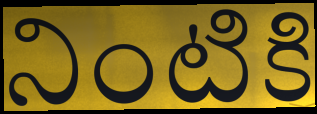
నింటికి